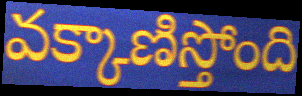
వక్కాణిస్తోంది